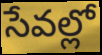
సేవల్లో